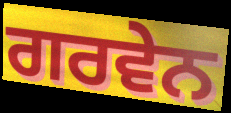
ਗਰਵੇਨ